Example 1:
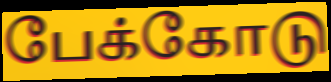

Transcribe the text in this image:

பேக்கோடு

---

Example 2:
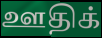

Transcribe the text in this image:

ஊதிக்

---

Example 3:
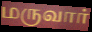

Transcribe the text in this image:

மருவார்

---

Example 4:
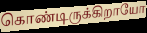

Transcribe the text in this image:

கொண்டிருக்கிறாயோ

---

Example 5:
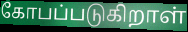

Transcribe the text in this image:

கோபப்படுகிறாள்